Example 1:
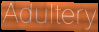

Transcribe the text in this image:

Adultery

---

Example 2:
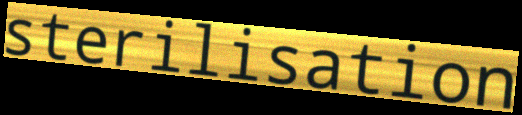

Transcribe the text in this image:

sterilisation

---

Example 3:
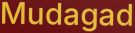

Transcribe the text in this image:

Mudagad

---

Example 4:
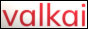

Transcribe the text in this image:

valkai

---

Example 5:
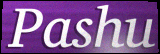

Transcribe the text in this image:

Pashu